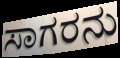
ಸಾಗರನು